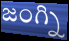
జంగ్ని